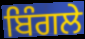
ਬਿੰਗਲੇ